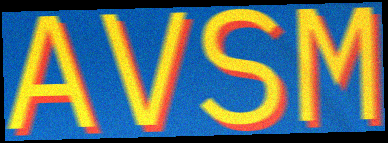
AVSM